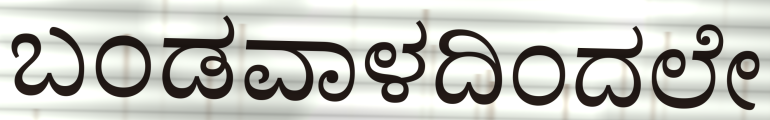
ಬಂಡವಾಳದಿಂದಲೇ